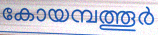
കോയമ്പത്തൂർ